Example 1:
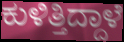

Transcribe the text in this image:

ಕುಳಿತ್ತಿದ್ದಾಳೆ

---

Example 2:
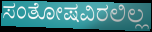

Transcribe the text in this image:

ಸಂತೋಷವಿರಲಿಲ್ಲ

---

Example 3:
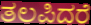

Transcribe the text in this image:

ತಲಪಿದರೆ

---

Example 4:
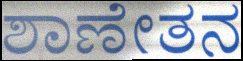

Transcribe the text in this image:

ಶಾಣೇತನ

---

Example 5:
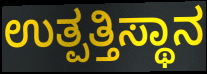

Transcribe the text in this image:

ಉತ್ಪತ್ತಿಸ್ಥಾನ